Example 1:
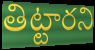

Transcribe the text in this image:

తిట్టారని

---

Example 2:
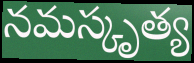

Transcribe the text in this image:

నమస్కృత్య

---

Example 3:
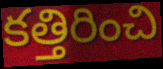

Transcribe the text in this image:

కత్తిరించి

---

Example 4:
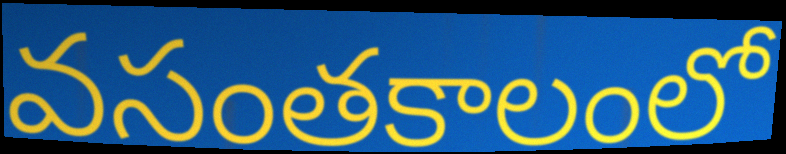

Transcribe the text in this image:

వసంతకాలంలో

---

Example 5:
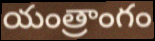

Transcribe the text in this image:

యంత్రాంగం